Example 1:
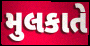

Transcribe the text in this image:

મુલકાતે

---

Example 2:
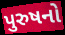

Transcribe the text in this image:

પુરુષનો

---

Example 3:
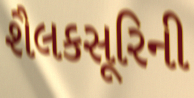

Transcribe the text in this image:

શૈલકસૂરિની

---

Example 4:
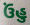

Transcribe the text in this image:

ઉંહુ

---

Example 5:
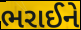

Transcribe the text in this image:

ભરાઈને